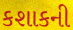
કશાકની